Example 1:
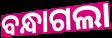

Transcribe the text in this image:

ବନ୍ଧାଗଲା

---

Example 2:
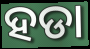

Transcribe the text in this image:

ହଡା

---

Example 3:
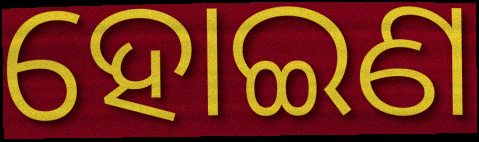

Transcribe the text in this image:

ହୋଇଣ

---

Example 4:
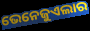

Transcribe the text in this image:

ଭେନେଜୁଏଲାର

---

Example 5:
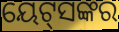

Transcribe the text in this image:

ୟେଟ୍‌ସଙ୍କର